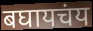
बघायचंय